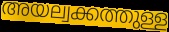
അയല്വക്കത്തുള്ള